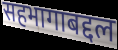
सहभागाबद्दल